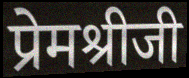
प्रेमश्रीजी